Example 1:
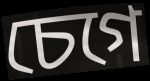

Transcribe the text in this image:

চেগে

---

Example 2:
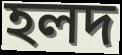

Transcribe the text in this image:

হলদ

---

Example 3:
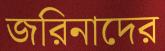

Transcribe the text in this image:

জরিনাদের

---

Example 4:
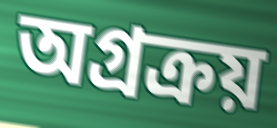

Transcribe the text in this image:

অগ্রক্রয়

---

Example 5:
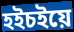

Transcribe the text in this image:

হইচইয়ে